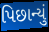
પિછાન્યું